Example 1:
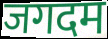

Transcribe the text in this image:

जगदम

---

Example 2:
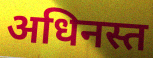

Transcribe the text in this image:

अधिनस्त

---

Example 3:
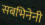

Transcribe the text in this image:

सबभिनेनी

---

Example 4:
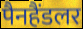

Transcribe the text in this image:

पैनहैंडलर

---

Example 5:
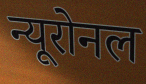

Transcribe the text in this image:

न्यूरोनल